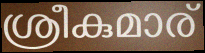
ശ്രീകുമാര്